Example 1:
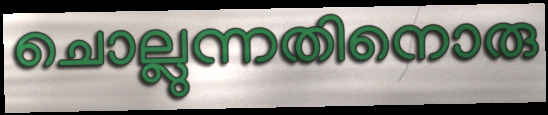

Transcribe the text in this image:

ചൊല്ലുന്നതിനൊരു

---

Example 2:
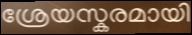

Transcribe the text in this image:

ശ്രേയസ്കരമായി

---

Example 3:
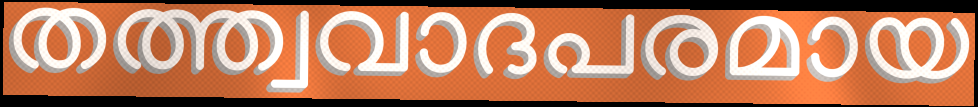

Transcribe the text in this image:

തത്ത്വവാദപരമായ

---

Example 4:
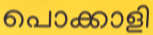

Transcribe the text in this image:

പൊക്കാളി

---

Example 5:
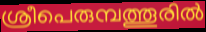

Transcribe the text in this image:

ശ്രീപെരുമ്പത്തൂരിൽ